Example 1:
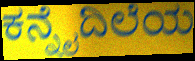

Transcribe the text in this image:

ಕನ್ನೈದಿಲೆಯ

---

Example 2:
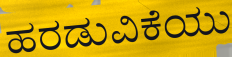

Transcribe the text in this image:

ಹರಡುವಿಕೆಯು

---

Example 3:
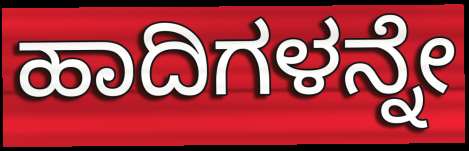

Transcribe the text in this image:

ಹಾದಿಗಳನ್ನೇ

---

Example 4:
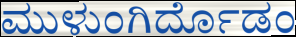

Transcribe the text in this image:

ಮುಳುಂಗಿರ್ದೊಡಂ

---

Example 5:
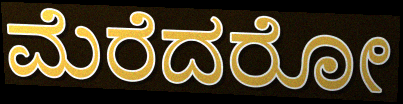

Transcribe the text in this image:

ಮೆರೆದರೋ